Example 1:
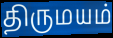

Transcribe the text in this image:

திருமயம்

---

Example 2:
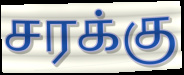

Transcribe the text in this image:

சரக்கு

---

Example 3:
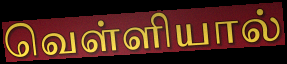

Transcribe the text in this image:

வெள்ளியால்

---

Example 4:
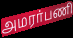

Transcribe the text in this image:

அமரர்பணி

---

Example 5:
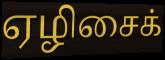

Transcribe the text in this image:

ஏழிசைக்